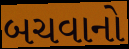
બચવાનો